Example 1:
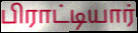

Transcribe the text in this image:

பிராட்டியார்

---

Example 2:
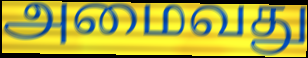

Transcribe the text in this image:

அமைவது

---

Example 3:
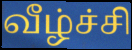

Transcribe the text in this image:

வீழ்ச்சி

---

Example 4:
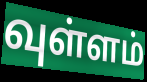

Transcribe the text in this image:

வுள்ளம்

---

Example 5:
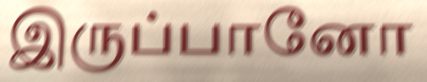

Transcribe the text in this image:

இருப்பானோ